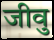
जीवु